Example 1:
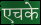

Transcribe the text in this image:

एचके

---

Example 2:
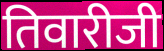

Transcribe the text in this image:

तिवारीजी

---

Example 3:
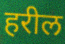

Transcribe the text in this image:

हरील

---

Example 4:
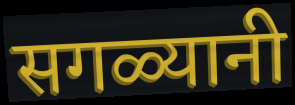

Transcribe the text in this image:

सगळ्यानी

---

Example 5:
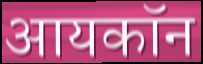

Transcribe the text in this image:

आयकॉन